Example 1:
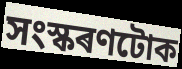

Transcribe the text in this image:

সংস্কৰণটোক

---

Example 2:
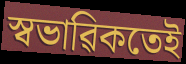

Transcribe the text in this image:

স্বভাৱিকতেই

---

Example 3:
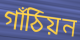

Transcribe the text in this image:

গাঁঠিয়ন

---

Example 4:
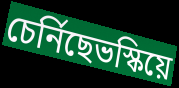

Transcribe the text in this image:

চেৰ্নিছেভস্কিয়ে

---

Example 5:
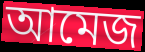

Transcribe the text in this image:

আমেজ